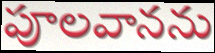
పూలవానను